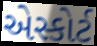
એસ્કોર્ટ